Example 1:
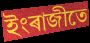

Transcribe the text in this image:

ইংৰাজীতে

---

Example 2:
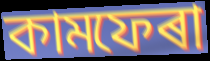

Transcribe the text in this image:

কামফেৰা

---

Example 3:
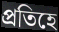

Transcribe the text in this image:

প্ৰতিহে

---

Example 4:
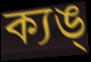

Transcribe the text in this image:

ক্যঙ্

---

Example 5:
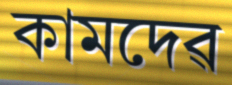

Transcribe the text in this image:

কামদেৱ